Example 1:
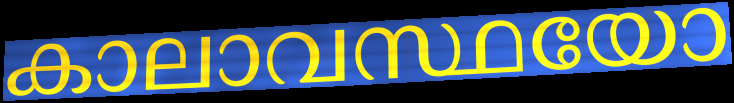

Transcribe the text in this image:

കാലാവസ്ഥയോ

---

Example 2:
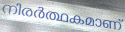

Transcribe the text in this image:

നിരർത്ഥകമാണ്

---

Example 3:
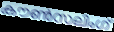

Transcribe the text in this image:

കൗൺസലിംഗ്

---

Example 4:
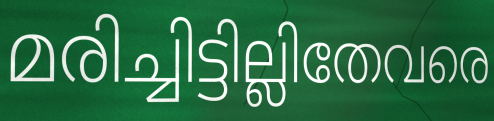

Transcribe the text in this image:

മരിച്ചിട്ടില്ലിതേവരെ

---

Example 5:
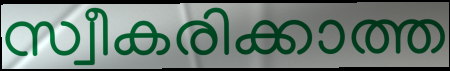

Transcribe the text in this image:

സ്വീകരിക്കാത്ത